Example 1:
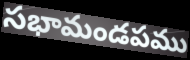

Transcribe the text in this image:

సభామండపము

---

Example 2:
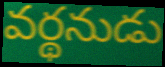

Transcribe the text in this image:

వర్థనుడు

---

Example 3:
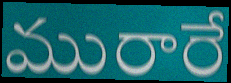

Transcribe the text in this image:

మురారే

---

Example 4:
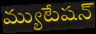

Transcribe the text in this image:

మ్యుటేషన్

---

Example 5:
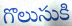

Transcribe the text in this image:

గొలుసుకి